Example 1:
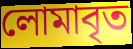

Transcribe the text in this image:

লোমাবৃত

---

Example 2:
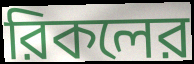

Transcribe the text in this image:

রিকলের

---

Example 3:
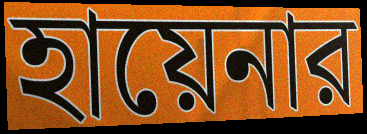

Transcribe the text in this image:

হায়েনার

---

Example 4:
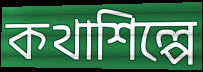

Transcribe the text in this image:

কথাশিল্পে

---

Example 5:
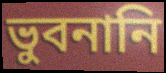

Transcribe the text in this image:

ভুবনানি